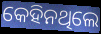
କେହିନଥିଲେ